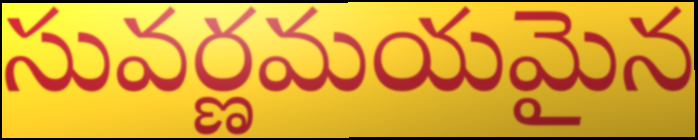
సువర్ణమయమైన